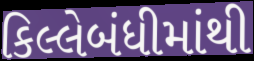
કિલ્લેબંધીમાંથી